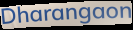
Dharangaon